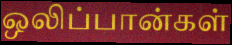
ஒலிப்பான்கள்